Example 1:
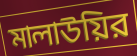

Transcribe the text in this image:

মালাউয়ির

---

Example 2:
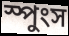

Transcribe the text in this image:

স্পুংস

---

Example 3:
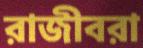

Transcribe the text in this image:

রাজীবরা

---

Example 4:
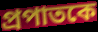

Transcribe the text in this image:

প্রপাতকে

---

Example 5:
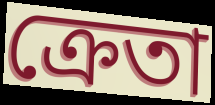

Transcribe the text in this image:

ক্রেতা